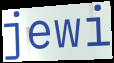
jewi